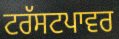
ਟਰੱਸਟਪਾਵਰ